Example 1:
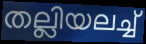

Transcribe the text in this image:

തല്ലിയലച്ച്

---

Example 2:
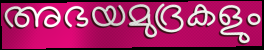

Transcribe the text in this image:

അഭയമുദ്രകളും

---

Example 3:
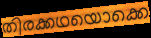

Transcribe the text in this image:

തിരക്കഥയൊക്കെ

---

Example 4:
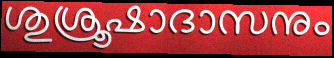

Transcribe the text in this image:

ശുശ്രൂഷാദാസനും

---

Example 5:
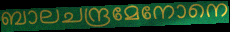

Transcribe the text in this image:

ബാലചന്ദ്രമേനോനെ